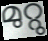
മുറ്റു